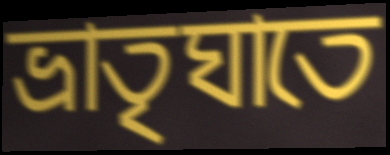
ভ্রাতৃঘাতে